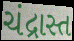
ચંદ્રાસ્ત